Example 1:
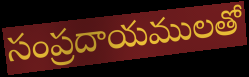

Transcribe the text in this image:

సంప్రదాయములతో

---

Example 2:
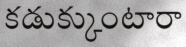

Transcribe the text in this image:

కడుక్కుంటారా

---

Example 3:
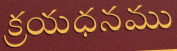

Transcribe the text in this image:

క్రయధనము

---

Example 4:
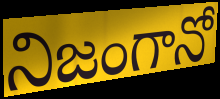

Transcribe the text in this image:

నిజంగానో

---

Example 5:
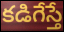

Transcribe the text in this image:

కడిగేస్తే